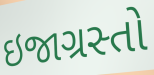
ઇજાગ્રસ્તો